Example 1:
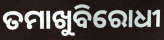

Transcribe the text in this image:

ତମାଖୁବିରୋଧୀ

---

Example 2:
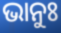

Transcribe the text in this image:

ଭାନୁଃ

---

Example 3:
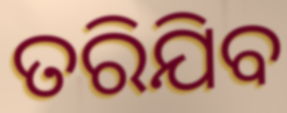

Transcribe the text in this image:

ତରିଯିବ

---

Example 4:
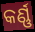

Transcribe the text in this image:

କର୍ଣ୍ଣ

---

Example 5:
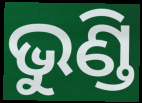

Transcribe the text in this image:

ଭୁଣ୍ଡି